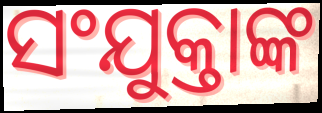
ସଂଯୁକ୍ତାଙ୍କ